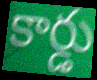
కార్డు